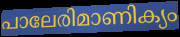
പാലേരിമാണിക്യം